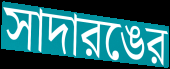
সাদারঙের